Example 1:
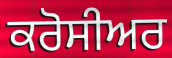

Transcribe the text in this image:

ਕਰੋਸੀਅਰ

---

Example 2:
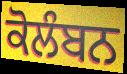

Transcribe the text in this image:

ਕੋਲੰਬਨ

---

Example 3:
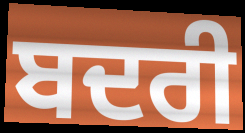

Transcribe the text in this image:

ਬਦਰੀ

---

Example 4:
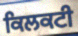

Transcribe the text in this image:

ਕਿਲਕਟੀ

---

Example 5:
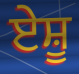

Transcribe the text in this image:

ਏਸ਼ੂ